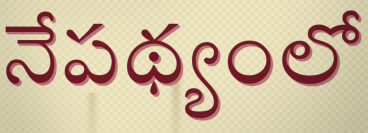
నేపథ్యంలో